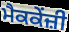
ਮੈਕਕੇਂਜ਼ੀ